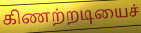
கிணற்றடியைச்